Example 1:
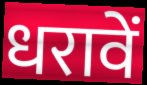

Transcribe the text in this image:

धरावें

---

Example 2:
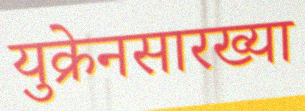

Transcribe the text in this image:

युक्रेनसारख्या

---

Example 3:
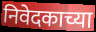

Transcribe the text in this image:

निवेदकाच्या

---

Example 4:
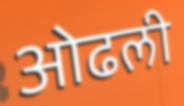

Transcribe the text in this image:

ओढली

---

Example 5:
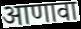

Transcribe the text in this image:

आणावा